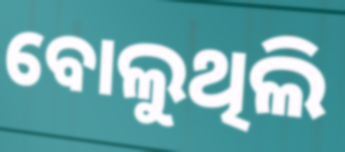
ବୋଲୁଥିଲି